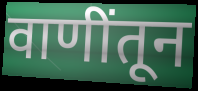
वाणींतून